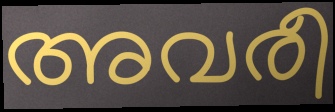
അവരീ